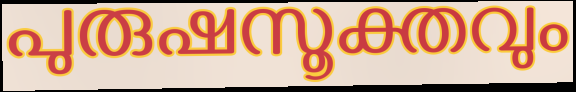
പുരുഷസൂക്തവും